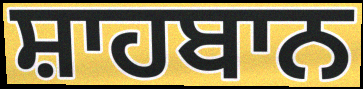
ਸ਼ਾਹਬਾਨ